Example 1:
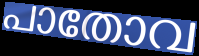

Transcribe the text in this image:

പാതോവ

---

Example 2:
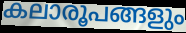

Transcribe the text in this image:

കലാരൂപങ്ങളും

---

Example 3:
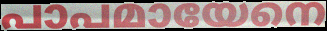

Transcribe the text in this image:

പാപമായേനെ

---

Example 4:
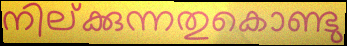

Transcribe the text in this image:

നില്ക്കുന്നതുകൊണ്ടു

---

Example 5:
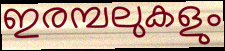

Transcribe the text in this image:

ഇരമ്പലുകളും